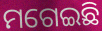
ମଗେଇଛି